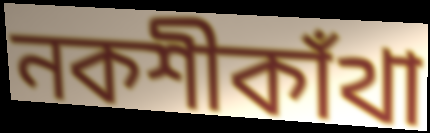
নকশীকাঁথা